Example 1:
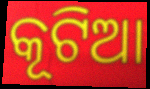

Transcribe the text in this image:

କୂଟିଆ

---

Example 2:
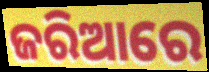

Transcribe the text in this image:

ଜରିଆରେ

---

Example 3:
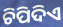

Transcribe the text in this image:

ଚିପିଦିଏ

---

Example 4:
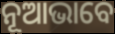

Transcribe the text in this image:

ନୂଆଭାବେ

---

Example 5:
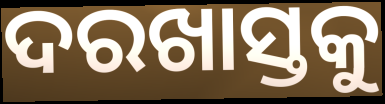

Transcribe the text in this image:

ଦରଖାସ୍ତକୁ